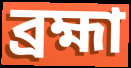
ব্ৰহ্মা